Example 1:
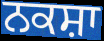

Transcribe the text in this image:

ਨਕਸ਼ਾ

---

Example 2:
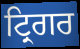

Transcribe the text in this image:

ਟ੍ਰਿਗਰ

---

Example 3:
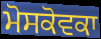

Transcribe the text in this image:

ਮੋਸਕੋਵਕਾ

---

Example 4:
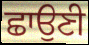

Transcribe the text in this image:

ਛਾਉਣੀ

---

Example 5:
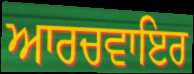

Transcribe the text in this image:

ਆਰਚਵਾਇਰ